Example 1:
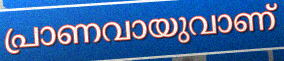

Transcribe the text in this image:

പ്രാണവായുവാണ്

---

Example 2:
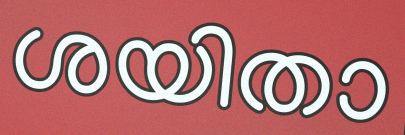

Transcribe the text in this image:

ശയിതാ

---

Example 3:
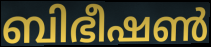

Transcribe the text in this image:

ബിഭീഷൺ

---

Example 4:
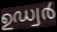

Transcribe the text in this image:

ഉഡ്വർ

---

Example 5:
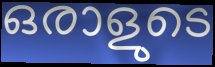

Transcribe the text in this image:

ഒരാളുടെ